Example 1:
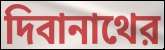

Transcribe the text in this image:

দিবানাথের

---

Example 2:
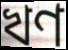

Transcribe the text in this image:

খণ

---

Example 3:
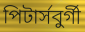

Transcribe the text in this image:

পিটার্সবুর্গী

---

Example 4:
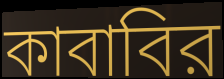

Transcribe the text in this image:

কাবাবির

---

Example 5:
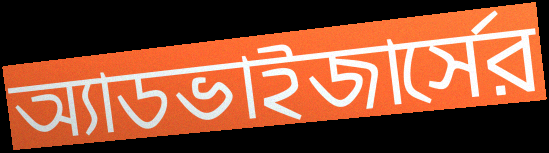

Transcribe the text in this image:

অ্যাডভাইজার্সের